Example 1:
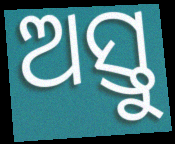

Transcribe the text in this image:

ଅସ୍ତୁ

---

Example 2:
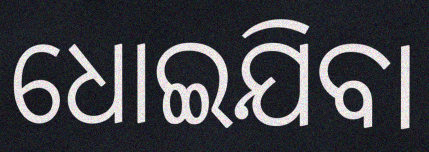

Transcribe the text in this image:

ଧୋଇଯିବା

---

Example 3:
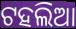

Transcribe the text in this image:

ଟହଲିଆ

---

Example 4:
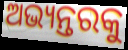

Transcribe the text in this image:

ଅଭ୍ୟନ୍ତରକୁ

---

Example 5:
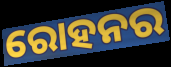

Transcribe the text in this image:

ରୋହନର